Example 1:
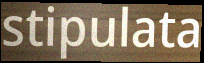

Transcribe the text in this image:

stipulata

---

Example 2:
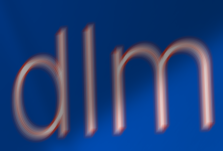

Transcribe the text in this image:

dlm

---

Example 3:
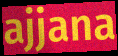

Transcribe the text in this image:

ajjana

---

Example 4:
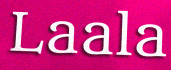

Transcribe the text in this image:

Laala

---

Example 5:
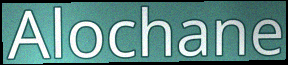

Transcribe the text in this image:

Alochane